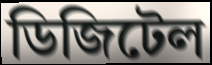
ডিজিটেল